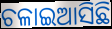
ଚଳାଇଆସିଛି